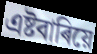
এষ্টবাৰিয়ে